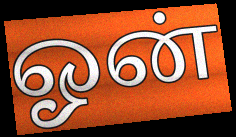
ஓன்